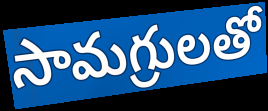
సామగ్రులతో